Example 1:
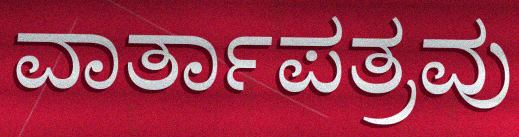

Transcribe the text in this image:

ವಾರ್ತಾಪತ್ರವು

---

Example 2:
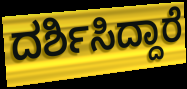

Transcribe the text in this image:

ದರ್ಶಿಸಿದ್ದಾರೆ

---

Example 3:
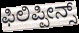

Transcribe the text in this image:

ಫಿಲಿಪ್ಪೀನ್ಸ್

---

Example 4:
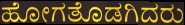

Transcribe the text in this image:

ಹೋಗತೊಡಗಿದರು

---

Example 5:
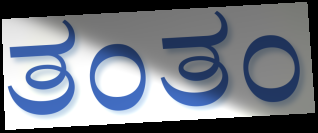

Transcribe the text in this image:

ತಂತಂ